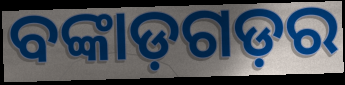
ବଙ୍କାଡ଼ଗଡ଼ର